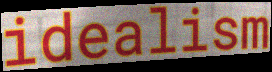
idealism